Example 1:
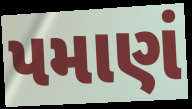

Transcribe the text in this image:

પમાણં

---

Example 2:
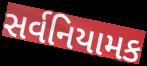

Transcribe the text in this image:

સર્વનિયામક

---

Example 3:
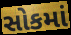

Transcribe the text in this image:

સોકમાં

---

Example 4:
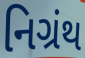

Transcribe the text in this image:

નિગ્રંથ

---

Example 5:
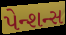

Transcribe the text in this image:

પેન્શન્સ